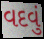
વદવું